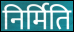
निर्मिति